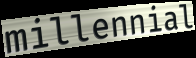
millennial